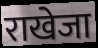
राखेजा